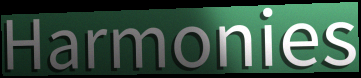
Harmonies